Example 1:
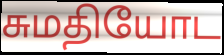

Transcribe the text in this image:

சுமதியோட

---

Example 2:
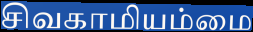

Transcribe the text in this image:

சிவகாமியம்மை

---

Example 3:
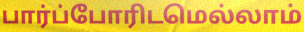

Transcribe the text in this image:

பார்ப்போரிடமெல்லாம்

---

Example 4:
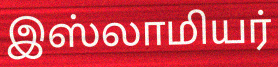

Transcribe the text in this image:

இஸ்லாமியர்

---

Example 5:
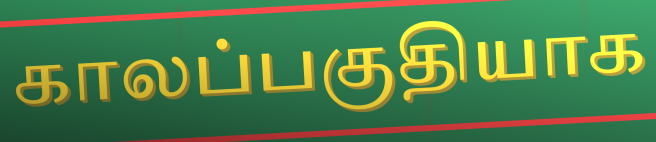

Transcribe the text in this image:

காலப்பகுதியாக